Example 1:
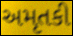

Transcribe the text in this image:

અમૃતકી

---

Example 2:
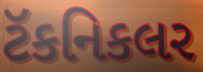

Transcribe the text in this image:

ટૅકનિકલર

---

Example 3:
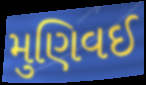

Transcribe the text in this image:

મુણિવઈ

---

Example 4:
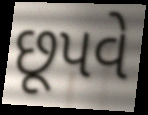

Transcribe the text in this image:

છૂપવે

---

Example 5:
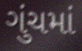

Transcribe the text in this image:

ગુંચમાં